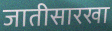
जातीसारखा